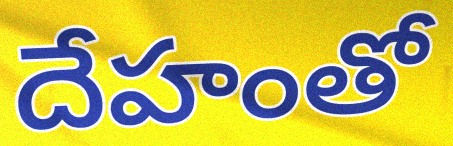
దేహంతో